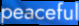
peaceful